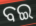
ବଇ